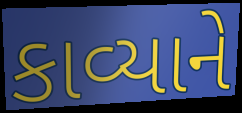
કાવ્યાને